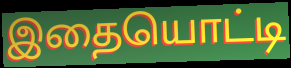
இதையொட்டி